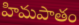
హిమపాతం